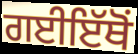
ਗਈਇੱਥੋਂ